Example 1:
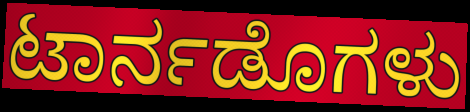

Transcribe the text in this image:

ಟಾರ್ನಡೊಗಳು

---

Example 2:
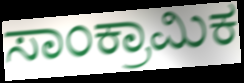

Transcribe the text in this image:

ಸಾಂಕ್ರಾಮಿಕ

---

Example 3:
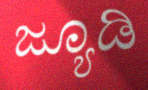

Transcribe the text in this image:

ಜ್ಯೂಡಿ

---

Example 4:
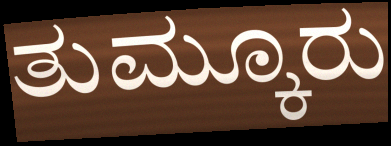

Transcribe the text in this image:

ತುಮ್ಕೂರು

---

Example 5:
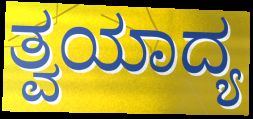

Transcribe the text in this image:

ತ್ವಯಾದ್ಯ